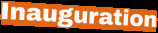
Inauguration